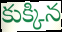
కుక్కిన